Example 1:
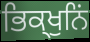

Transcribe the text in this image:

ਭਿਕ੍ਖੁਨਿਂ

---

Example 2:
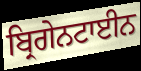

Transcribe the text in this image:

ਬ੍ਰਿਗੇਨਟਾਈਨ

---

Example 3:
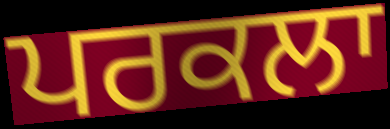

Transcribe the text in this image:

ਪਰਕਲਾ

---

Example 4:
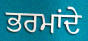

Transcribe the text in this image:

ਭਰਮਾਂਦੇ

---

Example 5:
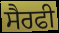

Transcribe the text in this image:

ਸੈਰਫੀ